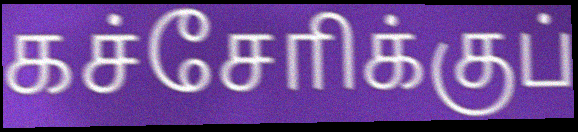
கச்சேரிக்குப்